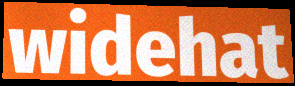
widehat